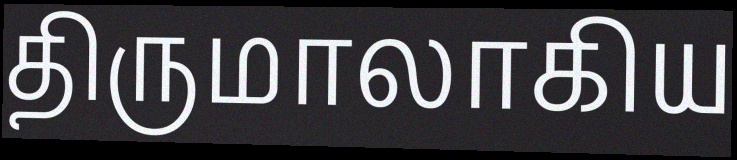
திருமாலாகிய